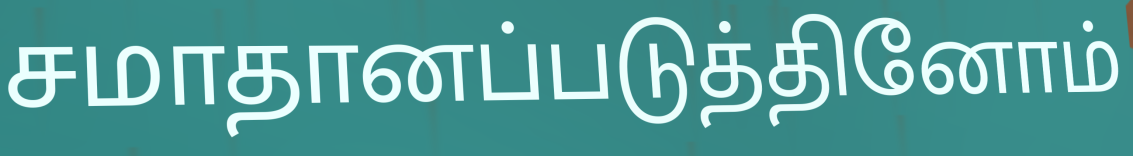
சமாதானப்படுத்தினோம்